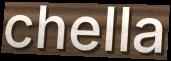
chella